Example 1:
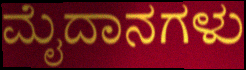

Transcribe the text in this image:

ಮೈದಾನಗಳು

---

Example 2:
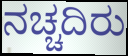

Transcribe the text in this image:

ನಚ್ಚದಿರು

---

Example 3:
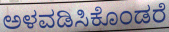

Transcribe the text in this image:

ಅಳವಡಿಸಿಕೊಂಡರೆ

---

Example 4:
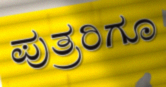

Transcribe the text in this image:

ಪುತ್ರರಿಗೂ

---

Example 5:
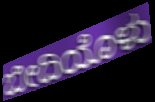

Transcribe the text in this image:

ಬೀದಿಯೊಳು